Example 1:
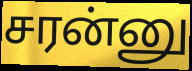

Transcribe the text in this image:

சரன்னு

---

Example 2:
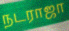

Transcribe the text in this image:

நடராஜா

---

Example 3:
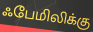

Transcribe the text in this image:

ஃபேமிலிக்கு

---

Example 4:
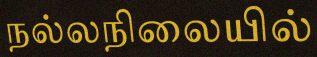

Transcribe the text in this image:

நல்லநிலையில்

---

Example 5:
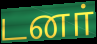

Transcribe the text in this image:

டனர்